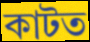
কাটত